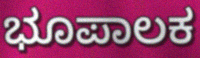
ಭೂಪಾಲಕ